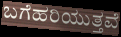
ಬಗೆಹರಿಯುತ್ತವೆ